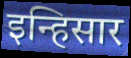
इन्हिसार